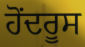
ਹੋਂਦਰੂਸ